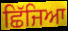
ਛਿੱਜਿਆ